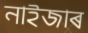
নাইজাৰ